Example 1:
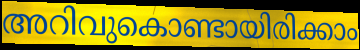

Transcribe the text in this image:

അറിവുകൊണ്ടായിരിക്കാം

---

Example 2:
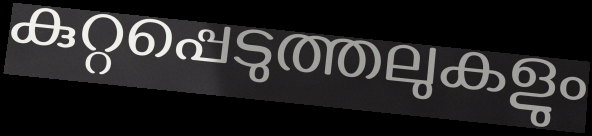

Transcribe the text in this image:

കുറ്റപ്പെടുത്തലുകളും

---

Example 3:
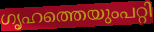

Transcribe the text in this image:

ഗൃഹത്തെയുംപറ്റി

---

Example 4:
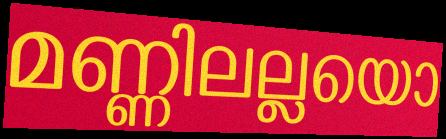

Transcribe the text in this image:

മണ്ണിലല്ലയൊ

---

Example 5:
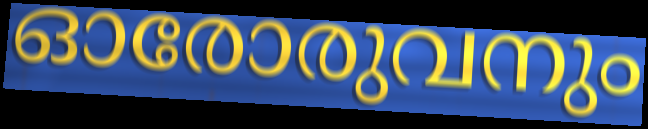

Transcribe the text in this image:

ഓരോരുവനും